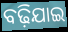
ବଢ଼ିଯାଇ